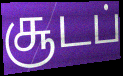
சூடப்